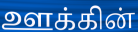
ஊக்கின்